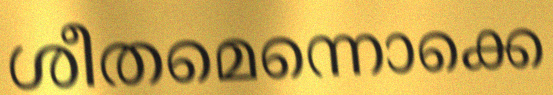
ശീതമെന്നൊക്കെ